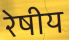
रेषीय